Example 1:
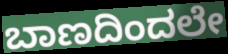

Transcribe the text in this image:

ಬಾಣದಿಂದಲೇ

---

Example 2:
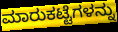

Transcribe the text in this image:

ಮಾರುಕಟ್ಟೆಗಳನ್ನು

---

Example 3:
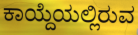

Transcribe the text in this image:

ಕಾಯ್ದೆಯಲ್ಲಿರುವ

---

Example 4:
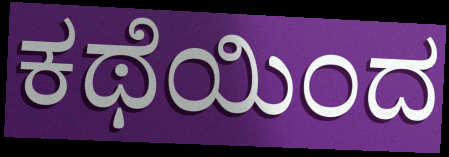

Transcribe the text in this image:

ಕಥೆಯಿಂದ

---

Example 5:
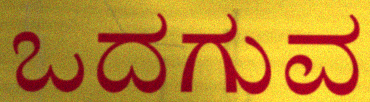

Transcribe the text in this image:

ಒದಗುವ